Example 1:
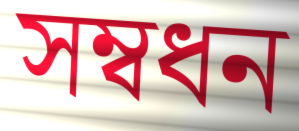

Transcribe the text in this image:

সম্বধন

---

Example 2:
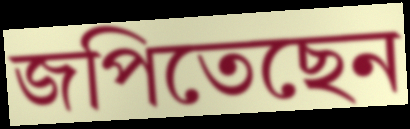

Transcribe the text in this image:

জপিতেছেন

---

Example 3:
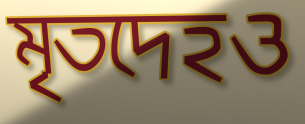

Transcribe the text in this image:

মৃতদেহও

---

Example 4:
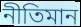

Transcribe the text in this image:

নীতিমান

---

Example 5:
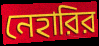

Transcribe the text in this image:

নেহারির